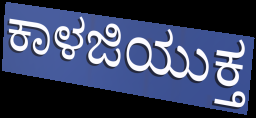
ಕಾಳಜಿಯುಕ್ತ